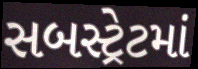
સબસ્ટ્રેટમાં